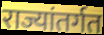
राज्यांतर्गत